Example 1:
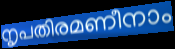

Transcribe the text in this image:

നൃപതിരമണീനാം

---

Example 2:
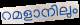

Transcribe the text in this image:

റമളാനിലും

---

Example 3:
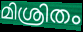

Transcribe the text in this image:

മിശ്രിതം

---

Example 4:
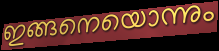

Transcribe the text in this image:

ഇങ്ങനെയൊന്നും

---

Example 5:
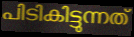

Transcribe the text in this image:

പിടികിട്ടുന്നത്